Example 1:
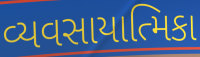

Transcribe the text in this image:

વ્યવસાયાત્મિકા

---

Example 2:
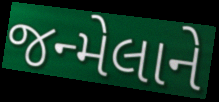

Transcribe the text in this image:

જન્મેલાને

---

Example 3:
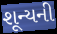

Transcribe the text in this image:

શૂન્યની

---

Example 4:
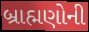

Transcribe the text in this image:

બ્રાહ્મણોની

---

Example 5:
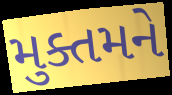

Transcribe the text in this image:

મુક્તમને